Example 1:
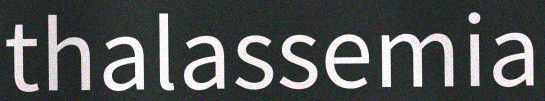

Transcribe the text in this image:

thalassemia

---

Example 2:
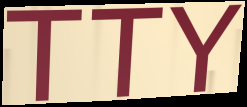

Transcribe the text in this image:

TTY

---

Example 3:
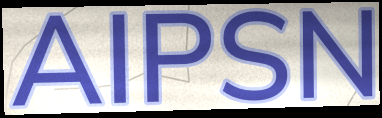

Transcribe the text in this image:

AIPSN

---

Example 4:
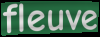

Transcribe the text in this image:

fleuve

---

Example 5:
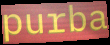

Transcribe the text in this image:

purba